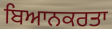
ਬਿਆਨਕਰਤਾ